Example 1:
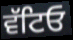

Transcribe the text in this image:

ਵੱਟਿਓ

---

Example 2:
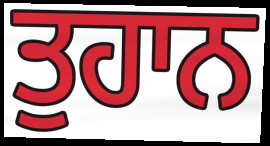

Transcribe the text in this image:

ਤੁਹਾਨ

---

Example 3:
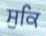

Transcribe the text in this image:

ਸੁਕਿ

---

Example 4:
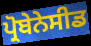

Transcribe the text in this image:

ਪ੍ਰੋਬੇਨੇਸੀਡ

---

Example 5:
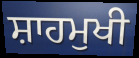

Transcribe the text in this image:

ਸ਼ਾਹਮੁਖੀ